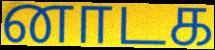
னாடக